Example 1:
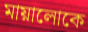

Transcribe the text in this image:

মায়ালোকে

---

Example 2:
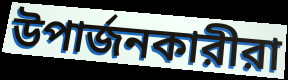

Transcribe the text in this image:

উপার্জনকারীরা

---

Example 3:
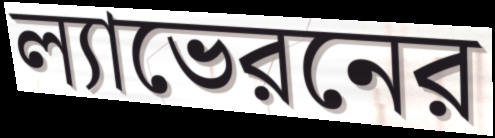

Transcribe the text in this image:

ল্যাভেরনের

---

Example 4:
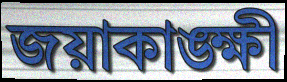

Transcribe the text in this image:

জয়াকাঙ্ক্ষী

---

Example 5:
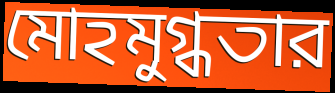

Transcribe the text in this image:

মোহমুগ্ধতার